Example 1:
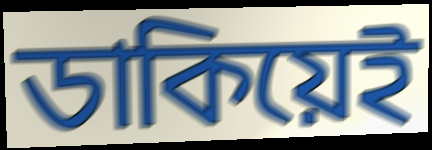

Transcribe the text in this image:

ডাকিয়েই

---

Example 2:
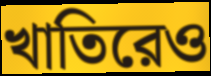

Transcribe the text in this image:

খাতিরেও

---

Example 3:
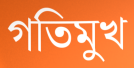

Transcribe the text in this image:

গতিমুখ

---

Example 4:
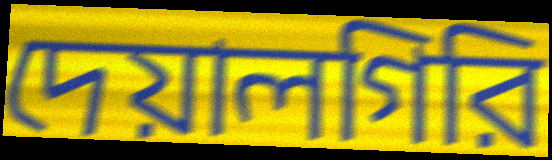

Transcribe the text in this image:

দেয়ালগিরি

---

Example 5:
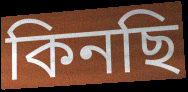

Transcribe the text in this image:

কিনছি